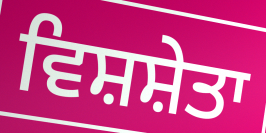
ਵਿਸ਼ਸ਼ੇਤਾ